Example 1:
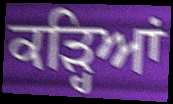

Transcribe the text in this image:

ਕੜ੍ਹਿਆਂ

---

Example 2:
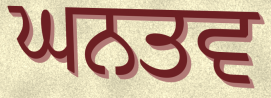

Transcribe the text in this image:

ਘਨਤਵ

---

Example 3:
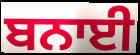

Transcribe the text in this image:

ਬਨਾਈ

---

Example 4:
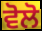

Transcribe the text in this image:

ਵੋਲੋ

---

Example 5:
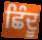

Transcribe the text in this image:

ਛਿੰਦੂ